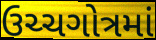
ઉચ્ચગોત્રમાં